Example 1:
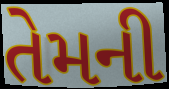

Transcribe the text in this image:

તેમની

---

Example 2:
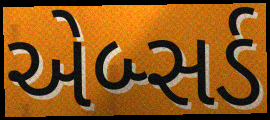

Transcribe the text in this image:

એબ્સર્ડ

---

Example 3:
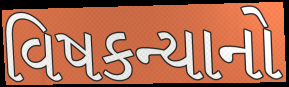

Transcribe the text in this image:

વિષકન્યાનો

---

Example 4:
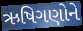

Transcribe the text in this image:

ઋષિગણોને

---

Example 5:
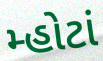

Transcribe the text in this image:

મ્હોટાં